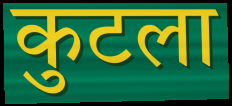
कुटला